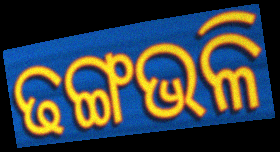
ଢଙ୍ଗଭଳି